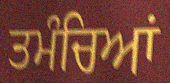
ਤਮੰਚਿਆਂ